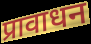
प्रावाधन